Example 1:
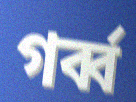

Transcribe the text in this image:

গর্ব্ব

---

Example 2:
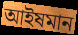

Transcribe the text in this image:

আইষমান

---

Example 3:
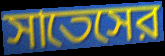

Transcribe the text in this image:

সাতেসের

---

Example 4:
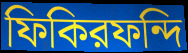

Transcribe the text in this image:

ফিকিরফন্দি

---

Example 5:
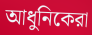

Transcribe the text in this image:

আধুনিকেরা